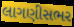
લાગણીસભર